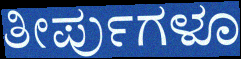
ತೀರ್ಪುಗಳೂ